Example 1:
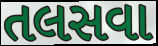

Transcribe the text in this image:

તલસવા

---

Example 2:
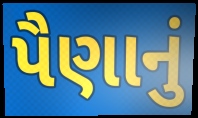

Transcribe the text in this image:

પૈણાનું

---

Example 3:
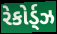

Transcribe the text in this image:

રેકોર્ડ્ઝ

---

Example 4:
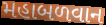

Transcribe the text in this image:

મહાબળવાન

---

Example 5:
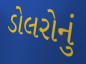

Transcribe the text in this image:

ડોલરોનું